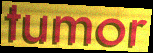
tumor